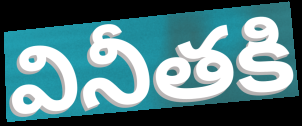
వినీతకి